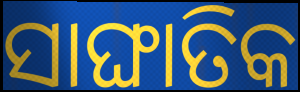
ସାଙ୍ଘାତିକ